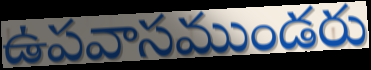
ఉపవాసముండరు